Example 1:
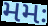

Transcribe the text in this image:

મમઃ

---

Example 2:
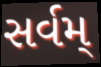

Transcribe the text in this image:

સર્વમ્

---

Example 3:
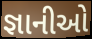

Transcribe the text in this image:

જ્ઞાનીઓ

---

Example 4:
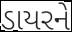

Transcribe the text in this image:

ડાયરને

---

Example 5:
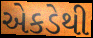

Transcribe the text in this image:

એકડેથી